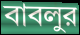
বাবলুর